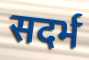
सदर्भ